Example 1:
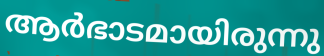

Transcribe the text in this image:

ആർഭാടമായിരുന്നു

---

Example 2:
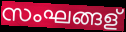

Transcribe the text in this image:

സംഘങ്ങള്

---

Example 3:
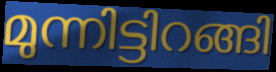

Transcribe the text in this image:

മുന്നിട്ടിറങ്ങി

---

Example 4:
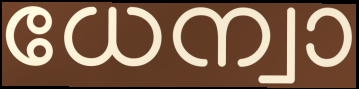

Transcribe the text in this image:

ധേന്വാ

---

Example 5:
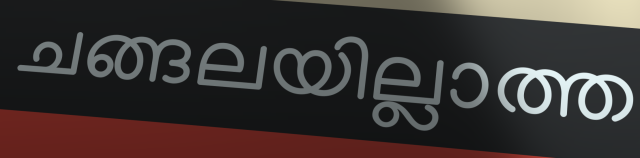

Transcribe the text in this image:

ചങ്ങലയില്ലാത്ത